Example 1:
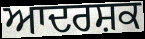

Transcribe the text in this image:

ਆਦਰਸ਼ਕ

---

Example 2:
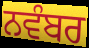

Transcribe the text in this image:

ਨਵੰਬਰ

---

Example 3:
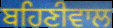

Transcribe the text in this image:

ਬਹਿਣੀਵਾਲ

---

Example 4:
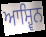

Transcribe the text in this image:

ਆਸ਼੍ਵਿਨ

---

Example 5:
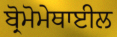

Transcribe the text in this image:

ਬ੍ਰੋਮੋਮੇਥਾਈਲ